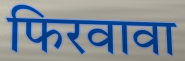
फिरवावा